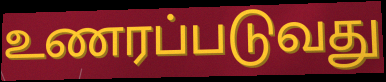
உணரப்படுவது